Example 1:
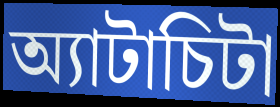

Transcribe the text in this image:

অ্যাটাচিটা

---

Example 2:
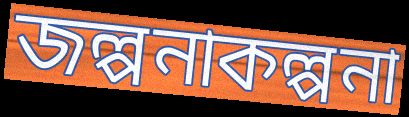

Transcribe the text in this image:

জল্পনাকল্পনা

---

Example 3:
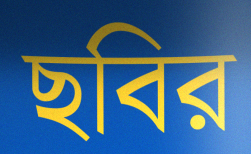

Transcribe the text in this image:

ছবির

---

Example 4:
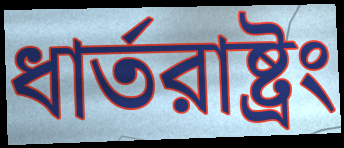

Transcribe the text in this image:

ধার্তরাষ্ট্রং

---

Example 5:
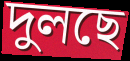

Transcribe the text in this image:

দুলছে